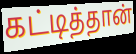
கட்டித்தான்